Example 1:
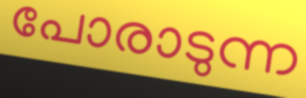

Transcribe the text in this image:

പോരാടുന്ന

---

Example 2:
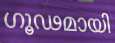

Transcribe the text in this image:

ഗൂഢമായി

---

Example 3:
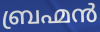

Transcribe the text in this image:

ബ്രഹ്മൻ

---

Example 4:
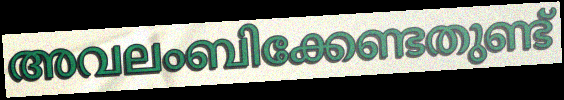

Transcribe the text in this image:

അവലംബിക്കേണ്ടതുണ്ട്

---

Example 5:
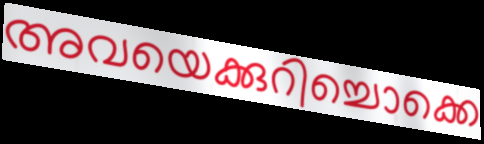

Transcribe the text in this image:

അവയെക്കുറിച്ചൊക്കെ